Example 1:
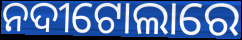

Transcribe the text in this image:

ନଦୀଟୋଲାରେ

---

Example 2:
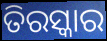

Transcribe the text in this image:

ତିରସ୍କାର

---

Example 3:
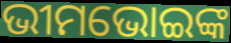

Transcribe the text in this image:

ଭୀମଭୋଇଙ୍କ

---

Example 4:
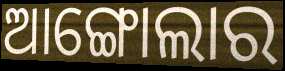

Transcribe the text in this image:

ଆଙ୍ଗୋଲାର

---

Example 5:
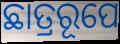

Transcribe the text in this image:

ଛାତ୍ରରୂପେ